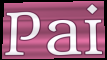
Pai